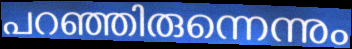
പറഞ്ഞിരുന്നെന്നും